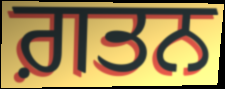
ਗ਼ਤਨ